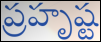
ప్రహృష్ట